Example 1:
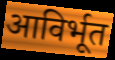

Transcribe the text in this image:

आविर्भूत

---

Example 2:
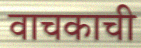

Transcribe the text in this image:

वाचकाची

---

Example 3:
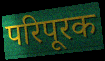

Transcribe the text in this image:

परिपूरक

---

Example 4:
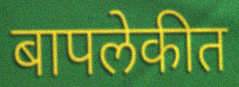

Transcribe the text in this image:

बापलेकीत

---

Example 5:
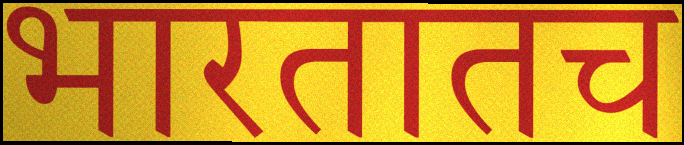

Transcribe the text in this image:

भारतातच